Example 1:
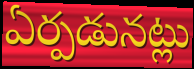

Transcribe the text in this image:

ఏర్పడునట్లు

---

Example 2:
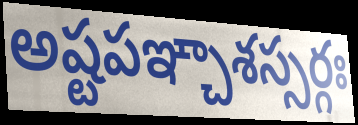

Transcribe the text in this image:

అష్టపఞ్చాశస్సర్గః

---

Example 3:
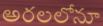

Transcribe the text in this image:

అరలలోనూ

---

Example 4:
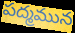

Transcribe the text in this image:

పద్మమున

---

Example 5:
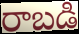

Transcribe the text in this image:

రాబడి